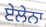
ਏਲੇਨਾ